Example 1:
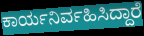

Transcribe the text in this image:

ಕಾರ್ಯನಿರ್ವಹಿಸಿದ್ದಾರೆ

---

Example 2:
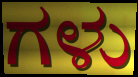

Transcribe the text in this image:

ಗಳು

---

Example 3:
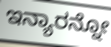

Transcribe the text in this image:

ಇನ್ಯಾರನ್ನೋ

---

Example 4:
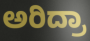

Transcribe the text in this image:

ಅರಿದ್ರಾ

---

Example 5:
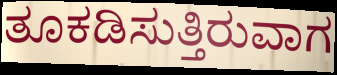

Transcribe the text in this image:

ತೂಕಡಿಸುತ್ತಿರುವಾಗ